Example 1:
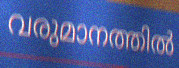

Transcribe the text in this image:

വരുമാനത്തിൽ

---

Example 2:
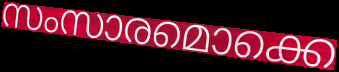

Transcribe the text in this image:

സംസാരമൊക്കെ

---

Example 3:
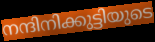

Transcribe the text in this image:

നന്ദിനിക്കുട്ടിയുടെ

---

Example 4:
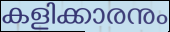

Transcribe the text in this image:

കളിക്കാരനും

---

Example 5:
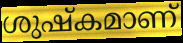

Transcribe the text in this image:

ശുഷ്കമാണ്